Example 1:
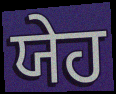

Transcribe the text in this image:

ਯੇਹ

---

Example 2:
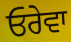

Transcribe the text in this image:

ਓਰੇਵਾ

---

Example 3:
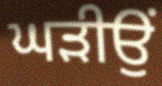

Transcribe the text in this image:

ਘੜੀਉਂ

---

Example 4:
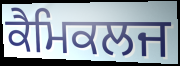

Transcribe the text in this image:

ਕੈਮਿਕਲਜ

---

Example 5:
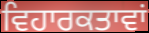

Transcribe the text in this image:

ਵਿਹਾਰਕਤਾਵਾਂ